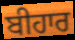
ਬੀਹਾਰ